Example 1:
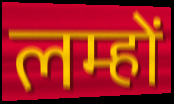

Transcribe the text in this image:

लम्हों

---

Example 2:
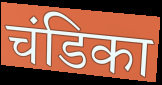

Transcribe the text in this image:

चंडिका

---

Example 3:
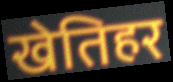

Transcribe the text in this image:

खेतिहर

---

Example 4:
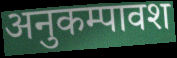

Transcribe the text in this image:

अनुकम्पावश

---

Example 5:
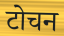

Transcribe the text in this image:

टोचन